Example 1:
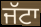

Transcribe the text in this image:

ਜੱਟਾ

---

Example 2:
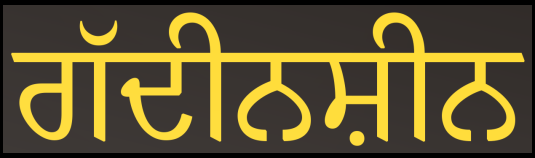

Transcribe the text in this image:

ਗੱਦੀਨਸ਼ੀਨ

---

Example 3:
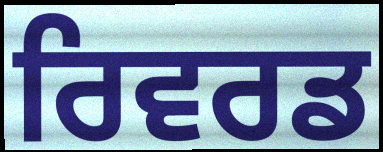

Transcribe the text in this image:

ਰਿਵਰਡ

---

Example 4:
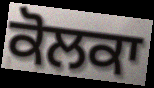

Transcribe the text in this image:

ਕੋਲਕਾ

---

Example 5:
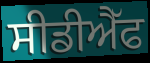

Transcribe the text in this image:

ਸੀਡੀਐੱਫ